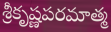
శ్రీకృష్ణపరమాత్మ